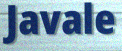
Javale